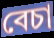
বেচা